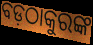
ବଡ଼ଠାକୁରଙ୍କ